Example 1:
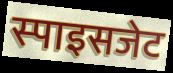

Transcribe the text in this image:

स्पाइसजेट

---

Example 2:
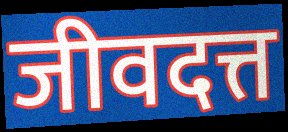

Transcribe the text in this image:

जीवदत्त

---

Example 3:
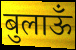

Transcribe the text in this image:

बुलाऊँ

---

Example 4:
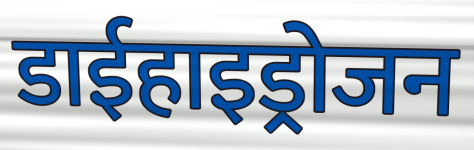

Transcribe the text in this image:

डाईहाइड्रोजन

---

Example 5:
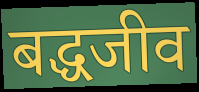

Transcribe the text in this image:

बद्धजीव